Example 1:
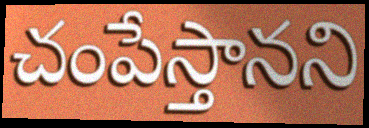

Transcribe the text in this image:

చంపేస్తానని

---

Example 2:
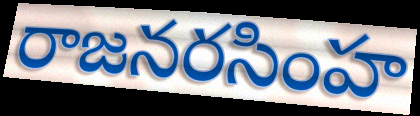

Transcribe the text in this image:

రాజనరసింహ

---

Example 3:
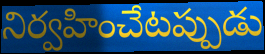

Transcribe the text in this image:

నిర్వహించేటప్పుడు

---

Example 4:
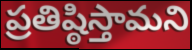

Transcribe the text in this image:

ప్రతిష్ఠిస్తామని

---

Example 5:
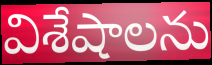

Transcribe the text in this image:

విశేషాలను